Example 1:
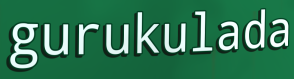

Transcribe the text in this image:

gurukulada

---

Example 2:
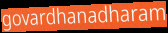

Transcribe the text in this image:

govardhanadharam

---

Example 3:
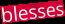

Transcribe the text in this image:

blesses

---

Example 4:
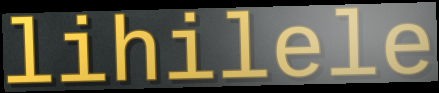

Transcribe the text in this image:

lihilele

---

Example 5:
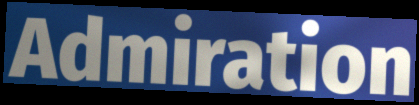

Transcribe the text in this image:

Admiration